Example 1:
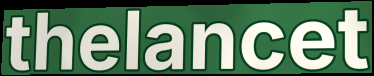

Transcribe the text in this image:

thelancet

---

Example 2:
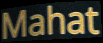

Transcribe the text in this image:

Mahat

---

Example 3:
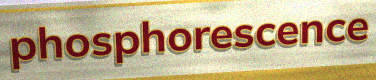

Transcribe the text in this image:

phosphorescence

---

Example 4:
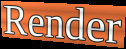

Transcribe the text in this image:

Render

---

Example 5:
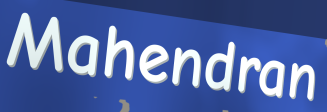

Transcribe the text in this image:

Mahendran